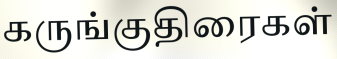
கருங்குதிரைகள்